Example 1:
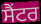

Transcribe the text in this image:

ਸੈਂਟਰ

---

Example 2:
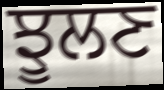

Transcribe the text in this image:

ਝੂਲਣ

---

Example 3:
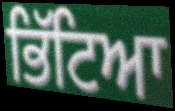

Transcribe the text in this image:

ਭਿੱਟਿਆ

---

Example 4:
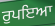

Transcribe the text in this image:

ਰੁਪਇਆ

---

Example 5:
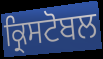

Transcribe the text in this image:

ਕ੍ਰਿਸਟੋਬਲ